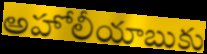
అహోలీయాబుకు